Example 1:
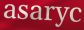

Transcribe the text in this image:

asaryc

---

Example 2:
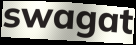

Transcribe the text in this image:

swagat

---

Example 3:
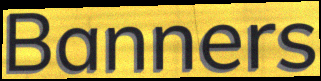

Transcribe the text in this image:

Banners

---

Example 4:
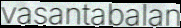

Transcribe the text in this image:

vasantabalan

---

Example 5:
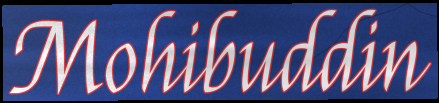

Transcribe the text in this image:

Mohibuddin